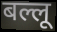
बल्लू